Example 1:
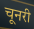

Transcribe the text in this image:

चूनरी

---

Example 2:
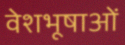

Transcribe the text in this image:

वेशभूषाओं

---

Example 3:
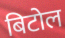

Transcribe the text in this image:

बिटोल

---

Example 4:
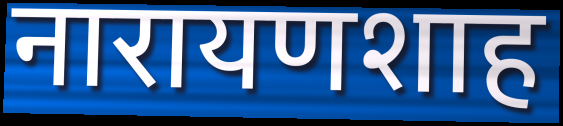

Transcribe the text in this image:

नारायणशाह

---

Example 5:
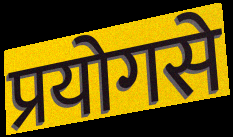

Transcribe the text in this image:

प्रयोगसे